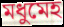
মধুমেহ